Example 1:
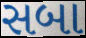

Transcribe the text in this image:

સબા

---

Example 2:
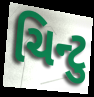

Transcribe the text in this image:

ચિન્ટુ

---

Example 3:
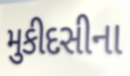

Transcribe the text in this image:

મુકીદસીના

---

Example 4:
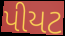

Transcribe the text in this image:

પીયટ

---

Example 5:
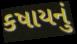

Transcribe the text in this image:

કષાયનું